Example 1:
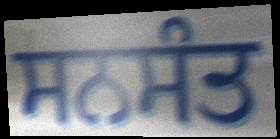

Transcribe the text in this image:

ਸਨਸੰਤ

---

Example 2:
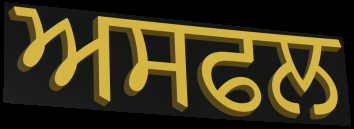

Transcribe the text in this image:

ਅਸਫਲ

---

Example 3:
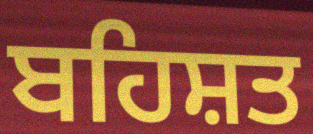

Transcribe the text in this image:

ਬਹਿਸ਼ਤ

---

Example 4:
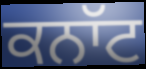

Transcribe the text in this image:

ਕਨਾੱਟ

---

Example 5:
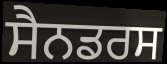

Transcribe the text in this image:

ਸੈਨਡਰਸ